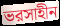
ভরসাহীন